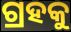
ଗ୍ରହକୁ